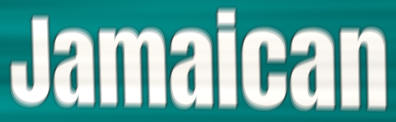
Jamaican